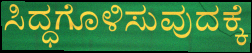
ಸಿದ್ಧಗೊಳಿಸುವುದಕ್ಕೆ